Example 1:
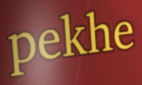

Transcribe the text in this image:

pekhe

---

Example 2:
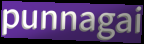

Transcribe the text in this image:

punnagai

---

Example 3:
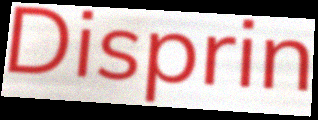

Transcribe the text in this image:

Disprin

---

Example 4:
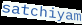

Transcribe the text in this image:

satchiyam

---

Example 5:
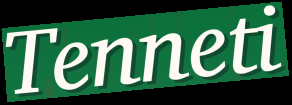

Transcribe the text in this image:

Tenneti